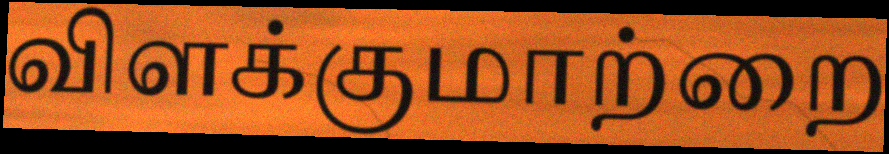
விளக்குமாற்றை